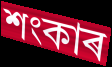
শংকাৰ